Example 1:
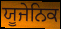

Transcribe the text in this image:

ਯੂਜੇਨਿਕ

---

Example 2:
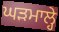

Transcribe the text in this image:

ਘੜਮਾਲ੍ਹੇ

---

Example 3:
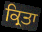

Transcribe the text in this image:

ਕ੍ਰਿਤਾ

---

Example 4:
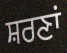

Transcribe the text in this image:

ਸ਼ਰਣਾਂ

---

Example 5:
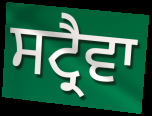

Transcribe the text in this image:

ਸਟ੍ਰੈਵਾ